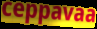
ceppavaa